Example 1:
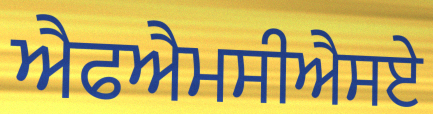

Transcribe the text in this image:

ਐਫਐਮਸੀਐਸਏ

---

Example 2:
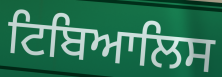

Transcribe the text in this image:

ਟਿਬਿਆਲਿਸ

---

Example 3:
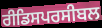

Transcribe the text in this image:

ਰੀਡਿਸਪਰਸੀਬਲ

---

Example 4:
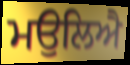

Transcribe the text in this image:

ਮਉਲਿਐ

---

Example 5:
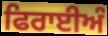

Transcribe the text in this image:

ਫਿਰਾਈਅੰ